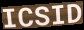
ICSID